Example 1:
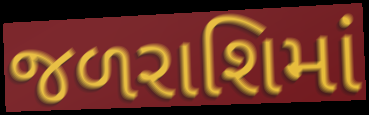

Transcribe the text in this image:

જળરાશિમાં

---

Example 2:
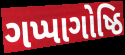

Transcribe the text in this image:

ગપ્પાગોષ્ઠિ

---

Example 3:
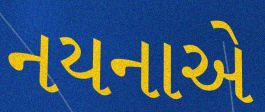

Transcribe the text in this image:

નયનાએ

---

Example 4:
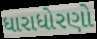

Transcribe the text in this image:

ધારાધોરણો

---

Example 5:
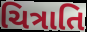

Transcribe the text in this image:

ચિત્રાતિ